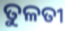
ତୁଳତୀ